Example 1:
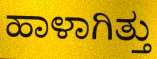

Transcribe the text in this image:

ಹಾಳಾಗಿತ್ತು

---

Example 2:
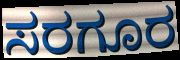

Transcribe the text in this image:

ಸರಗೂರ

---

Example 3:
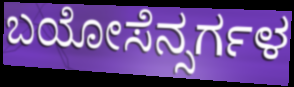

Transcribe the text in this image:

ಬಯೋಸೆನ್ಸರ್ಗಳ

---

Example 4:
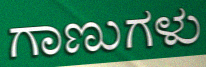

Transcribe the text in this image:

ಗಾಣುಗಳು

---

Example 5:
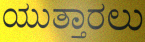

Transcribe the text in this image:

ಯುತ್ತಾರಲು